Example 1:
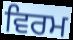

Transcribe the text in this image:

ਵਿਰਮ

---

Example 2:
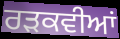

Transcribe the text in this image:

ਰੜਕਵੀਆਂ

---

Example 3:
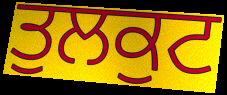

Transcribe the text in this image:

ਤੁਲਕੁਟ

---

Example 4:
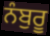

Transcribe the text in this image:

ਨੰਬੁਰੂ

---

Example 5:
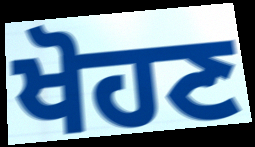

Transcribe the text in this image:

ਖੋਹਣ